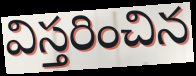
విస్తరించిన